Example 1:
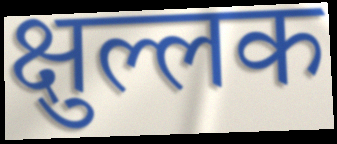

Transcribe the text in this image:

क्षुल्लक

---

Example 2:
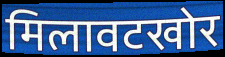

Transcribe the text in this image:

मिलावटखोर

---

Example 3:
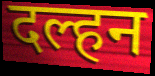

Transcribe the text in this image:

दल्हन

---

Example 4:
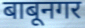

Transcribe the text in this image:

बाबूनगर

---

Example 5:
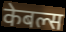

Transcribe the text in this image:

केबल्स